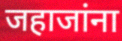
जहाजांना